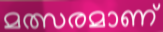
മത്സരമാണ്